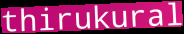
thirukural